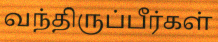
வந்திருப்பீர்கள்